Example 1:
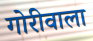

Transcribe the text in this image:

गोरीवाला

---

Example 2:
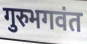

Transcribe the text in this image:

गुरुभगवंत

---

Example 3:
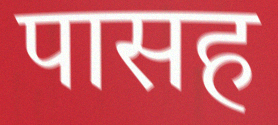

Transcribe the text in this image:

पासह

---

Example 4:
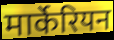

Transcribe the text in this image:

मार्केरियन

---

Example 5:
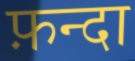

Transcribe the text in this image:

फ़न्दा